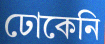
ঢোকেনি